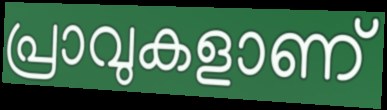
പ്രാവുകളാണ്